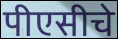
पीएसीचे